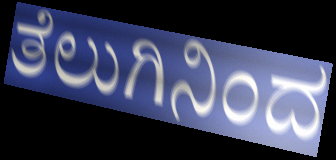
ತೆಲುಗಿನಿಂದ